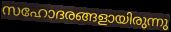
സഹോദരങ്ങളായിരുന്നു